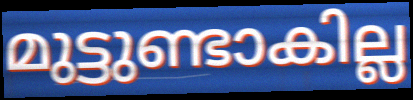
മുട്ടുണ്ടാകില്ല